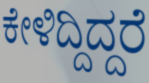
ಕೇಳಿದ್ದಿದ್ದರೆ